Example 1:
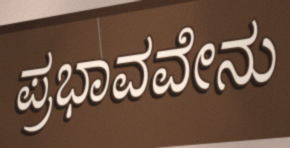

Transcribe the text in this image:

ಪ್ರಭಾವವೇನು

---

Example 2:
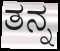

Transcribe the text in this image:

ತನ್ನ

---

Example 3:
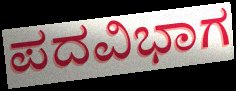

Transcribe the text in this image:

ಪದವಿಭಾಗ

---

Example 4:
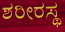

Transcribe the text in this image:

ಶರೀರಸ್ಥ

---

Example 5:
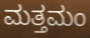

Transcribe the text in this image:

ಮತ್ತಮಂ